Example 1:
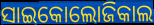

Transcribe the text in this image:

ସାଇକୋଲୋଜିକାଲ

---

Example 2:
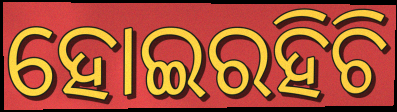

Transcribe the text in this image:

ହୋଇରହିଚି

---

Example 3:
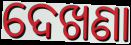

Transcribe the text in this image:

ଦେଖଣା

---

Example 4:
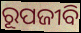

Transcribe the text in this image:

ରୂପଜୀବି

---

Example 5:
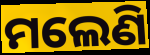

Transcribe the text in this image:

ମଲେଣି